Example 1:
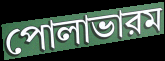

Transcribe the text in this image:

পোলাভারম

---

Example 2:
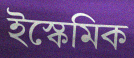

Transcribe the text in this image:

ইস্কেমিক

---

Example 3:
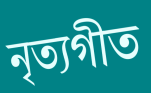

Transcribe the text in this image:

নৃত্যগীত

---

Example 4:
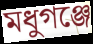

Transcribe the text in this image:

মধুগঞ্জে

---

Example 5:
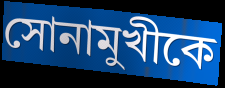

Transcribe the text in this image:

সোনামুখীকে